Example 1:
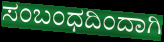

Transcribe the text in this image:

ಸಂಬಂಧದಿಂದಾಗಿ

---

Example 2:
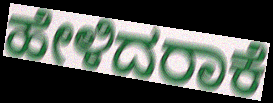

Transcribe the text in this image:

ಹೇಳಿದರಾಕೆ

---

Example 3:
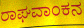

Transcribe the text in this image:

ರಾಘವಾಂಕನ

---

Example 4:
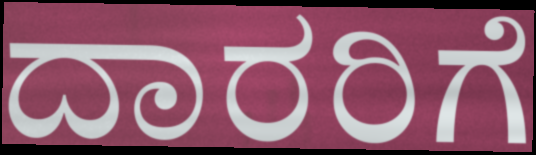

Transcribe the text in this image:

ದಾರರಿಗೆ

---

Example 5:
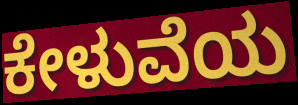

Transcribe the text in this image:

ಕೇಳುವೆಯ